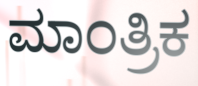
ಮಾಂತ್ರಿಕ